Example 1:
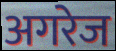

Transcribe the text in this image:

अगरेज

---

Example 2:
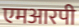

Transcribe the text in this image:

एमआरपी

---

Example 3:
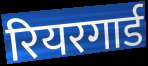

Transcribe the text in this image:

रियरगार्ड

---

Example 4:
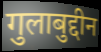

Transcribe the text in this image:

गुलाबुद्दीन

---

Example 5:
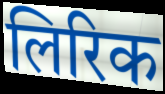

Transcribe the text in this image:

लिरिक